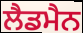
ਲੈਡਮੈਨ